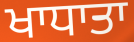
ਖਾਧਾਤਾ